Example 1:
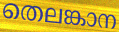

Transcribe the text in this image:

തെലങ്കാന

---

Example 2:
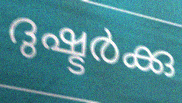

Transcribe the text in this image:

ദുഷ്ടർക്കു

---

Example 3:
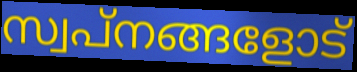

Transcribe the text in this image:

സ്വപ്നങ്ങളോട്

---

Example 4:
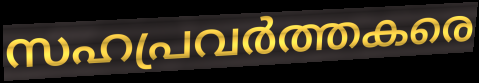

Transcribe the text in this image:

സഹപ്രവർത്തകരെ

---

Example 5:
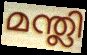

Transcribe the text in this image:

മന്ത്ലി